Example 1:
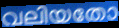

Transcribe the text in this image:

വലിയതോ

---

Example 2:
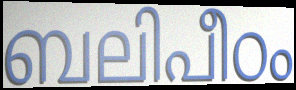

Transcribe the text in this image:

ബലിപീഠം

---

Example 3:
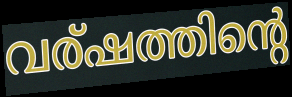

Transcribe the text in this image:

വര്ഷത്തിന്റെ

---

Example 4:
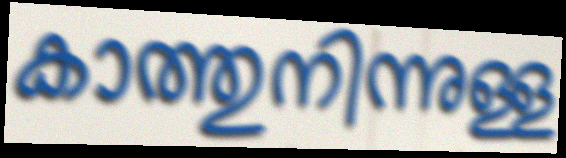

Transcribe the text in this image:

കാത്തുനിന്നുള്ള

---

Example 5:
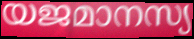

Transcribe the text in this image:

യജമാനസ്യ